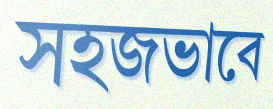
সহজভাবে